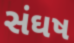
સંઘષ